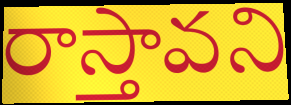
రాస్తావని